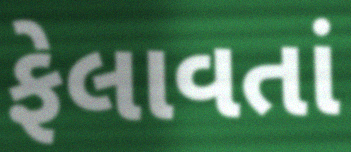
ફેલાવતાં